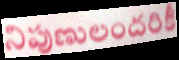
నిపుణులందరికీ